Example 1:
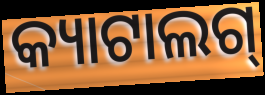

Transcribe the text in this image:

କ୍ୟାଟାଲଗ୍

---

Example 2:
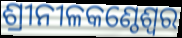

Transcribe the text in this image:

ଶ୍ରୀନୀଳକଣ୍ଠେଶ୍ଵର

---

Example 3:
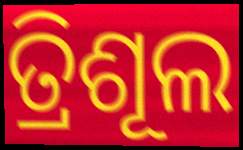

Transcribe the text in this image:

ତ୍ରିଶୂଲ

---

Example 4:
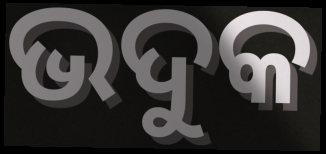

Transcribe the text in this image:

ଭଦୁକ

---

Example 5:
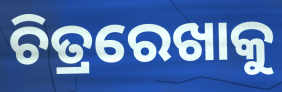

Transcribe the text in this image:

ଚିତ୍ରରେଖାକୁ